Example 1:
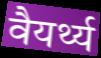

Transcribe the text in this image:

वैयर्थ्य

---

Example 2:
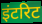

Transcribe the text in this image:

इंटरिट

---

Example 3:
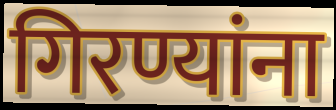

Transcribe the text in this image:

गिरण्यांना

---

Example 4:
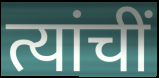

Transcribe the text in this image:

त्यांचीं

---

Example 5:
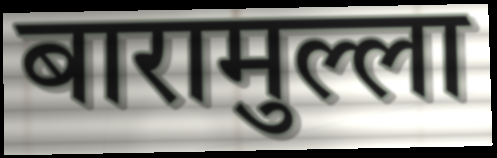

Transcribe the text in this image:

बारामुल्ला